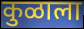
कुळाला